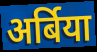
अर्बिया